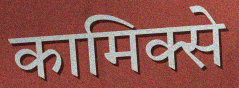
कामिक्से